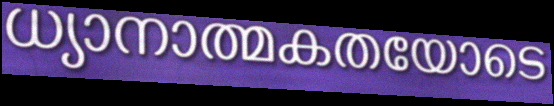
ധ്യാനാത്മകതയോടെ